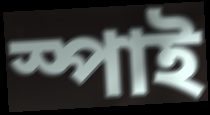
স্পাই